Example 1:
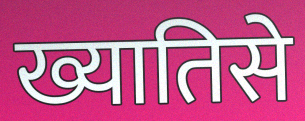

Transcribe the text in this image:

ख्यातिसे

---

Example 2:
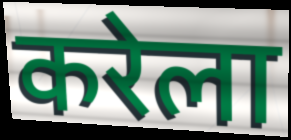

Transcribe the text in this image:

करेला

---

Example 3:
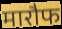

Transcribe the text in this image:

मारौफ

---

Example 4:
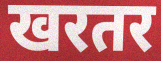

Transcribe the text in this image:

खरतर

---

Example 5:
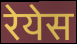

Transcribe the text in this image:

रेयेस